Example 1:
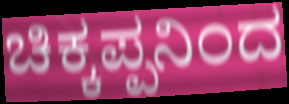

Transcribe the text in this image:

ಚಿಕ್ಕಪ್ಪನಿಂದ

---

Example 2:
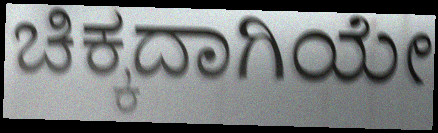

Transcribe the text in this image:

ಚಿಕ್ಕದಾಗಿಯೇ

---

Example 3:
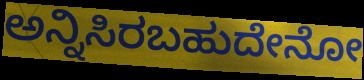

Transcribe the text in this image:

ಅನ್ನಿಸಿರಬಹುದೇನೋ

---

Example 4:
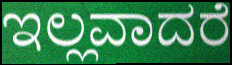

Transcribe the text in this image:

ಇಲ್ಲವಾದರೆ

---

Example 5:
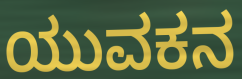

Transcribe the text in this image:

ಯುವಕನ